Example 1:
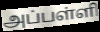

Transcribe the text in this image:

அப்பள்ளி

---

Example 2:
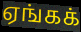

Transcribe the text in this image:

ஏங்கக்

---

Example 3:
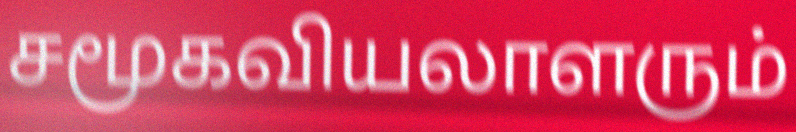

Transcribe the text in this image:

சமூகவியலாளரும்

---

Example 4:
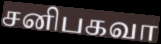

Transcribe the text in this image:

சனிபகவா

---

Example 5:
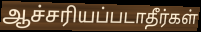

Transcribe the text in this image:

ஆச்சரியப்படாதீர்கள்